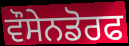
ਵੌਸੇਨਡੋਰਫ